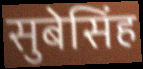
सुबेसिंह